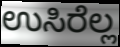
ಉಸಿರೆಲ್ಲ